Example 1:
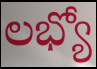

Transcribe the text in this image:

లభ్యో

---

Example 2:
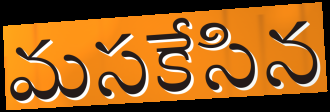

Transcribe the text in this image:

మసకేసిన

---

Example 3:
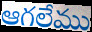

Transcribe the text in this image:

ఆగలేము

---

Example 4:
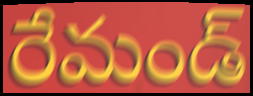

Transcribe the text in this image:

రేమండ్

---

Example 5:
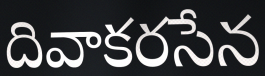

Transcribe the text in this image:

దివాకరసేన